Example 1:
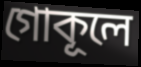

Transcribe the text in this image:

গোকূলে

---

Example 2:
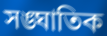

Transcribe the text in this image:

সঙ্ঘাতিক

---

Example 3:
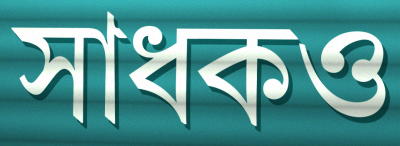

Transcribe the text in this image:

সাধকও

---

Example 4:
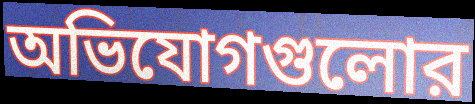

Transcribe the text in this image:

অভিযোগগুলোর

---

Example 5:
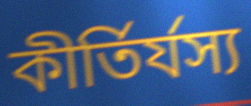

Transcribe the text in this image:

কীর্তির্যস্য